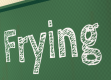
Frying